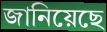
জানিয়েছে